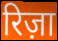
रिज़ा